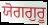
ਯੋਗਗੁਰੂ